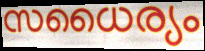
സധൈര്യം